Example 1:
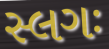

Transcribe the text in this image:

સ્લગઃ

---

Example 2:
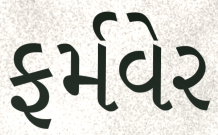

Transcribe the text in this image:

ફર્મવેર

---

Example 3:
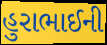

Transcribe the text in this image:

હુરાભાઈની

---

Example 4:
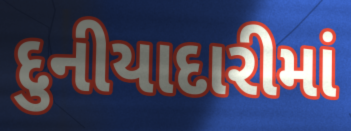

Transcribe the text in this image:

દુનીયાદારીમાં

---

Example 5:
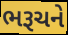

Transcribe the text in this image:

ભરૂચને